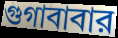
গুগাবাবার